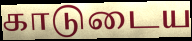
காடுடைய